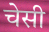
चेसी